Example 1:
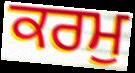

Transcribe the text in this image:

ਕਰਮੁ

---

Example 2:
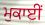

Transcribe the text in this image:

ਮੁਕਾਈਂ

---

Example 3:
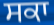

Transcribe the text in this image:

ਸਕਾ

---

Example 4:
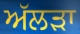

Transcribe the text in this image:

ਅੱਲੜਾ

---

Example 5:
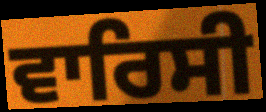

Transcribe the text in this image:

ਵਾਰਿਸੀ